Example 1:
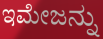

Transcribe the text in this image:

ಇಮೇಜನ್ನು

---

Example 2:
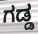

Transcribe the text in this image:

ಗಡ್ಡ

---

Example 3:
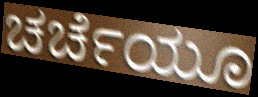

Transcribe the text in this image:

ಚರ್ಚೆಯೂ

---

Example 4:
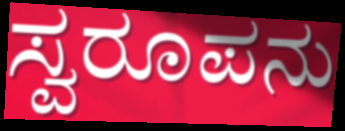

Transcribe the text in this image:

ಸ್ವರೂಪನು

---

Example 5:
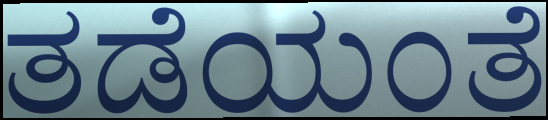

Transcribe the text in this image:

ತಡೆಯಂತೆ